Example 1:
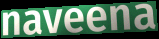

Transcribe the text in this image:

naveena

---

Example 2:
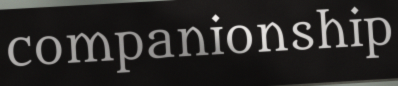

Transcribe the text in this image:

companionship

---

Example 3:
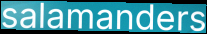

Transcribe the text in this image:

salamanders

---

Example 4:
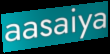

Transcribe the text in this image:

aasaiya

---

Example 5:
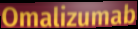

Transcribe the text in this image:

Omalizumab